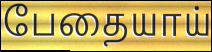
பேதையாய்